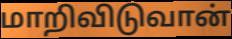
மாறிவிடுவான்